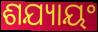
ଶଯ୍ୟାୟଂ